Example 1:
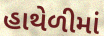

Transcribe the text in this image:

હાથેળીમાં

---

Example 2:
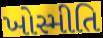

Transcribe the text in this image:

ખોસ્મીતિ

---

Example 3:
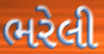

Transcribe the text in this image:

ભરેલી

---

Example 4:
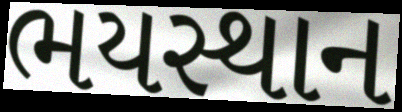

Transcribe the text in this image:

ભયસ્થાન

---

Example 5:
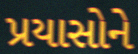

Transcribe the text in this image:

પ્રયાસોને